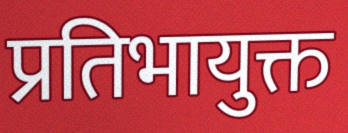
प्रतिभायुक्त